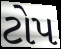
ટોપ